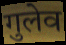
गुलेव